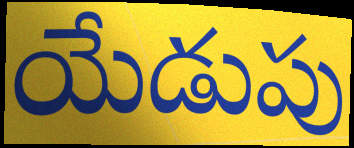
యేడుపు